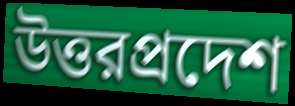
উত্তরপ্রদেশ